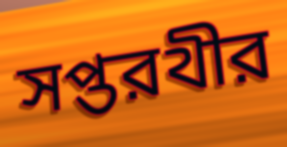
সপ্তরথীর